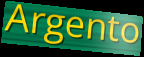
Argento